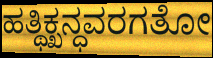
ಹತ್ಥಿಕ್ಖನ್ಧವರಗತೋ